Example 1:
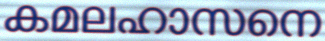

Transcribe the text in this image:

കമലഹാസനെ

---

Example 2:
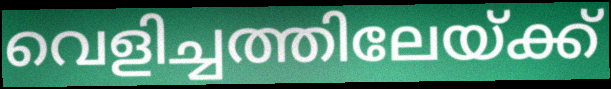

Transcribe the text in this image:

വെളിച്ചത്തിലേയ്ക്ക്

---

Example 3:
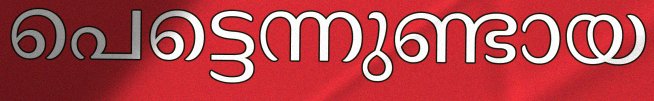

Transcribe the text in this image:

പെട്ടെന്നുണ്ടായ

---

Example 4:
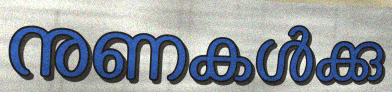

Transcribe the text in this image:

നുണകൾക്കു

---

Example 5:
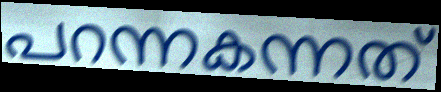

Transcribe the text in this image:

പറന്നകന്നത്